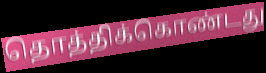
தொத்திக்கொண்டது